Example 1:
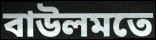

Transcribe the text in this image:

বাউলমতে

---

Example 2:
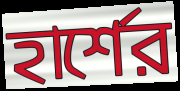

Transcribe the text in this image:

হার্শের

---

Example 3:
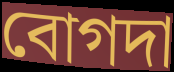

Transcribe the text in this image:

বোগদা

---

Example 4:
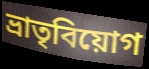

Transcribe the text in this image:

ভ্রাতৃবিয়োগ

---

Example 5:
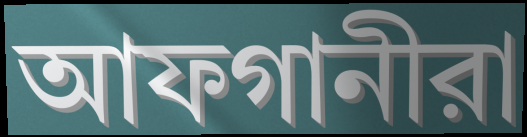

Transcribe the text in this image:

আফগানীরা